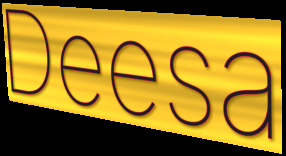
Deesa